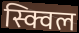
स्क्विल